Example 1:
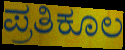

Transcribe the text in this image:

ಪ್ರತಿಕೂಲ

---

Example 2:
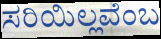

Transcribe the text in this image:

ಸರಿಯಿಲ್ಲವೆಂಬ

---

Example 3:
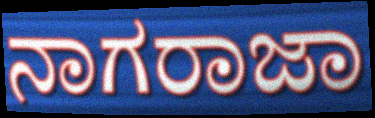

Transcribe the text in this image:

ನಾಗರಾಜಾ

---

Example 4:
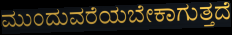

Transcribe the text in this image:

ಮುಂದುವರೆಯಬೇಕಾಗುತ್ತದೆ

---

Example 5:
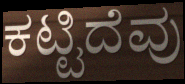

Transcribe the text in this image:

ಕಟ್ಟಿದೆವು